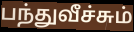
பந்துவீச்சும்